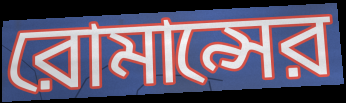
রোমান্সের